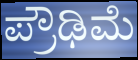
ಪ್ರೌಢಿಮೆ